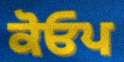
ਕੋਓਪ